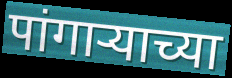
पांगार्‍याच्या